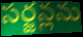
సర్జన్లను